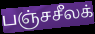
பஞ்சசீலக்